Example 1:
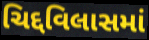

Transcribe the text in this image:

ચિદ્દવિલાસમાં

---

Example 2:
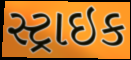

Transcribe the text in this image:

સ્ટ્રાઇક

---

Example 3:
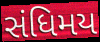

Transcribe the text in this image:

સંધિમય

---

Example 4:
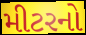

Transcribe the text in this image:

મીટરનો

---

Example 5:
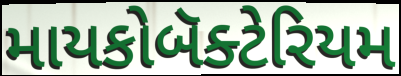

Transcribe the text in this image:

માયકોબૅક્ટેરિયમ